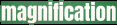
magnification